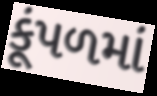
કૂંપળમાં